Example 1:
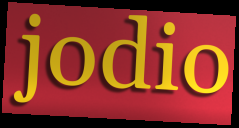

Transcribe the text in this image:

jodio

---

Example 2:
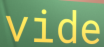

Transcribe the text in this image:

vide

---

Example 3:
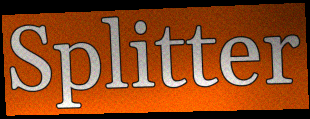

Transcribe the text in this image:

Splitter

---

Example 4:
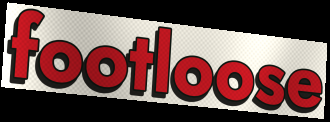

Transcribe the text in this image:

footloose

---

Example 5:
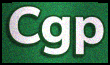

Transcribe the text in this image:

Cgp